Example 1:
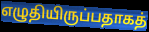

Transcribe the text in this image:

எழுதியிருப்பதாகத்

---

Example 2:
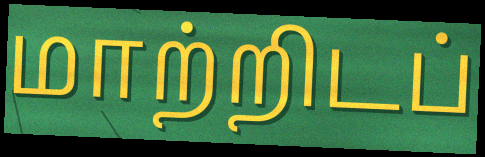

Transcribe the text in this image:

மாற்றிடப்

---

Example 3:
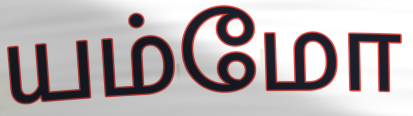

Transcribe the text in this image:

யம்மோ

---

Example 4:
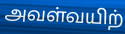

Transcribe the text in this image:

அவள்வயிற்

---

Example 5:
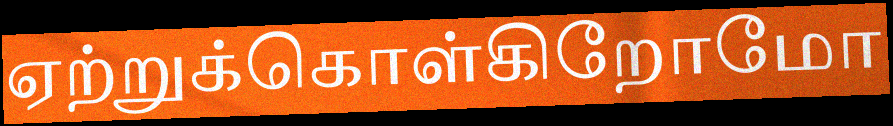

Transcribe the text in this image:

ஏற்றுக்கொள்கிறோமோ